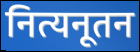
नित्यनूतन